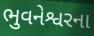
ભુવનેશ્વરના